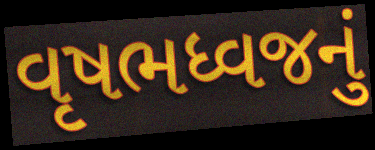
વૃષભધ્વજનું